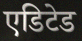
एडिटेड